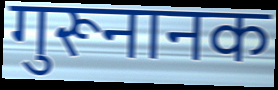
गुरूनानक